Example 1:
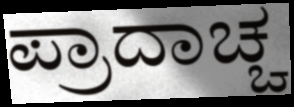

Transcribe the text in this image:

ಪ್ರಾದಾಚ್ಚ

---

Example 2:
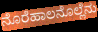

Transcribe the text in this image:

ನೊರೆಹಾಲನೊಲ್ಲೆನು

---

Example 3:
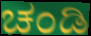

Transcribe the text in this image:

ಚಂಡಿ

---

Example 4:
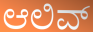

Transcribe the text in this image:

ಆಲಿವ್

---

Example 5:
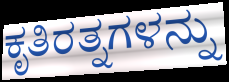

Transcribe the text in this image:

ಕೃತಿರತ್ನಗಳನ್ನು